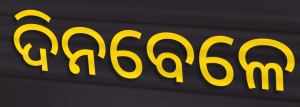
ଦିନବେଳେ